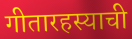
गीतारहस्याची